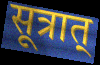
सूत्रात्